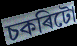
চকৰিটো